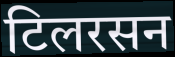
टिलरसन